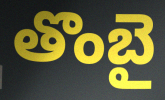
తొంబై